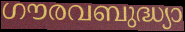
ഗൗരവബുദ്ധ്യാ